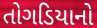
તોગડિયાનો